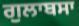
ਗੁਲਾਬਸਾ